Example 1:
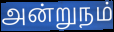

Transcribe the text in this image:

அன்றுநம்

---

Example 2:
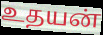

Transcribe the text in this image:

உதயன்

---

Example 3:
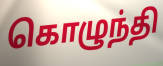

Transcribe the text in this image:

கொழுந்தி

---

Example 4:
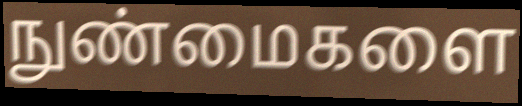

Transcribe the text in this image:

நுண்மைகளை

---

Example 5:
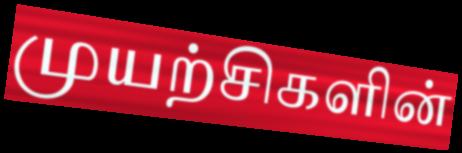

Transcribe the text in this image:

முயற்சிகளின்